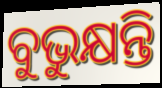
ବୁଭୁକ୍ଷନ୍ତି